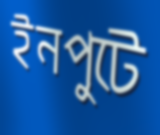
ইনপুটে